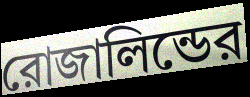
রোজালিন্ডের